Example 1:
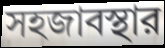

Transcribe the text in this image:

সহজাবস্থার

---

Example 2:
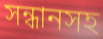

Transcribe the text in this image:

সন্ধানসহ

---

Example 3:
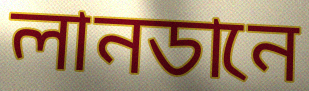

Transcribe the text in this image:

লানডানে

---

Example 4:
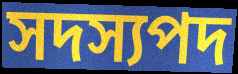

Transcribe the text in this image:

সদস্যপদ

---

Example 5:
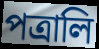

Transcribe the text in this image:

পত্রালি